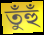
তুঁহুঁ